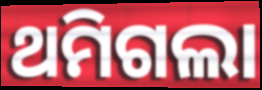
ଥମିଗଲା